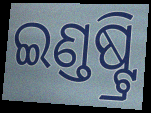
ଇଣ୍ଡଷ୍ଟ୍ରି